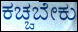
ಕಚ್ಚಬೇಕು